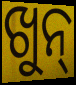
ଖୁନ୍